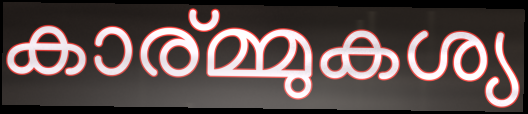
കാര്മ്മുകശ്യ